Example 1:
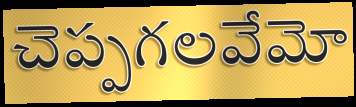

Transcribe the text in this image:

చెప్పగలవేమో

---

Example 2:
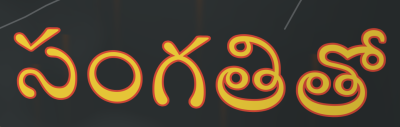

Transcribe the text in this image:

సంగతితో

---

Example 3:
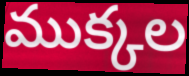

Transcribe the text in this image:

ముక్కల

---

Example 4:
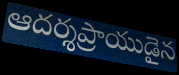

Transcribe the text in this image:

ఆదర్శప్రాయుడైన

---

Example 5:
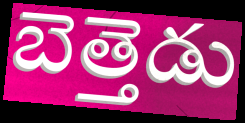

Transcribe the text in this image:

బెత్తెడు